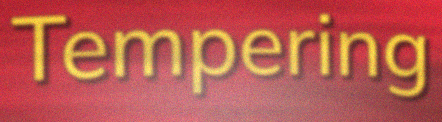
Tempering